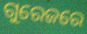
ଗୁରେଜରେ